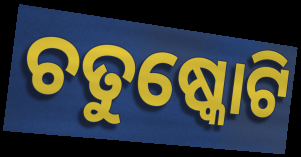
ଚତୁଷ୍କୋଟି